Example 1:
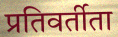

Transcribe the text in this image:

प्रतिवर्तीता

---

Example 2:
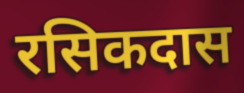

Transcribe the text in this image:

रसिकदास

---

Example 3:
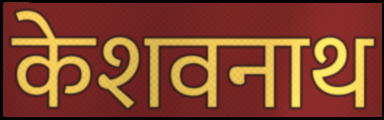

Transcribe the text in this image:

केशवनाथ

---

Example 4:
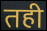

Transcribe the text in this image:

तही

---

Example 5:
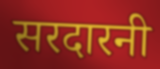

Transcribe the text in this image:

सरदारनी